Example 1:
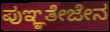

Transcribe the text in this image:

ಪುಞ್ಞತೇಜೇನ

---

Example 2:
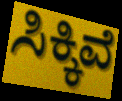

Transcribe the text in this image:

ಸಿಕ್ಕಿವೆ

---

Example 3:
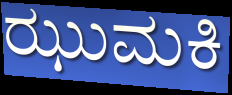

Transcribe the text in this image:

ಝುಮಕಿ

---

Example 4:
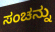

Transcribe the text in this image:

ಸಂಚನ್ನು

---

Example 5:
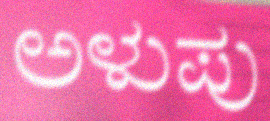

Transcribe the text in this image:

ಅಳುಪು